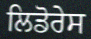
ਲਿਡੋਰੇਸ